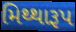
મિથ્થારૂપ